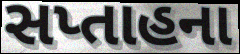
સપ્તાહના